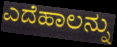
ಎದೆಹಾಲನ್ನು